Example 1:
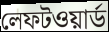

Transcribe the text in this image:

লেফটওয়ার্ড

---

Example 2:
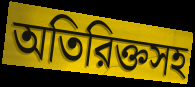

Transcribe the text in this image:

অতিরিক্তসহ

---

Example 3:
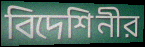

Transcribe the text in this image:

বিদেশিনীর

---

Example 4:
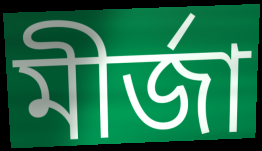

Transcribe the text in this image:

মীর্জা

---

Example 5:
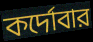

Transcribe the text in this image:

কর্দোবার